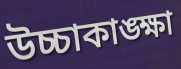
উচ্চাকাঙ্ক্ষা